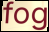
fog